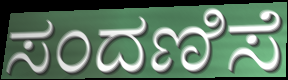
ಸಂದಣಿಸೆ